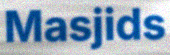
Masjids